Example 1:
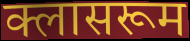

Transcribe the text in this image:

क्‍लासरूम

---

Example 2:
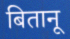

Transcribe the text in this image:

बितानू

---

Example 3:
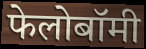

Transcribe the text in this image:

फेलोबॉमी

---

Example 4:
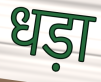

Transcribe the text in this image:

धड़ा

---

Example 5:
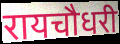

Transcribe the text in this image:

रायचौधरी